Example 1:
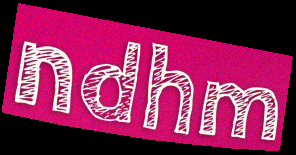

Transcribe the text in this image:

ndhm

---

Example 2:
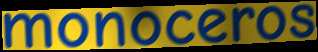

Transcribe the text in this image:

monoceros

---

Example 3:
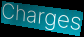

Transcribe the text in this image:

Charges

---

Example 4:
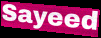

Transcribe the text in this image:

Sayeed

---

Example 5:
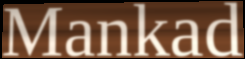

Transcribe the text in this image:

Mankad